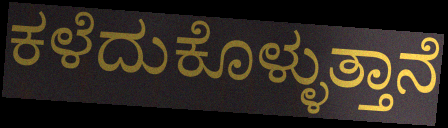
ಕಳೆದುಕೊಳ್ಳುತ್ತಾನೆ